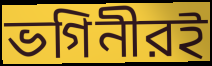
ভগিনীরই